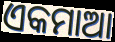
ଏକମାଆ